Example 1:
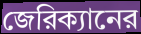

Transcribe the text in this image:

জেরিক্যানের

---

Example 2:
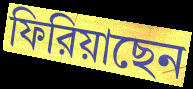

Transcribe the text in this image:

ফিরিয়াছেন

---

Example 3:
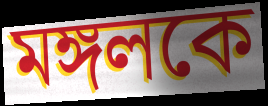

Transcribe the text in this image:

মঙ্গলকে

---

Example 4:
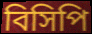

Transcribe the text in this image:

বিসিপি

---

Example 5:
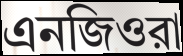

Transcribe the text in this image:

এনজিওরা